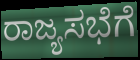
ರಾಜ್ಯಸಭೆಗೆ